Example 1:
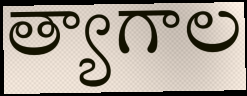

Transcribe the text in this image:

త్యాగాల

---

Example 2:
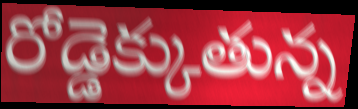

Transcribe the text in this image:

రోడ్డెక్కుతున్న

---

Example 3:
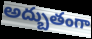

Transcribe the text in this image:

అద్బుతంగా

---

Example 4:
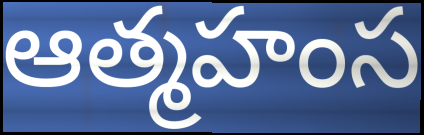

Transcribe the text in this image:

ఆత్మహంస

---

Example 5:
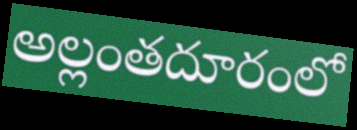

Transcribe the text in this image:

అల్లంతదూరంలో